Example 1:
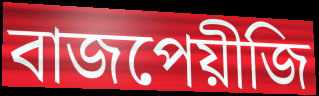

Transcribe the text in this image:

বাজপেয়ীজি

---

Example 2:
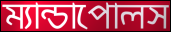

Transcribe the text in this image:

ম্যান্ডাপোলস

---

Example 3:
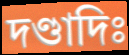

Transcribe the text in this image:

দণ্ডাদিঃ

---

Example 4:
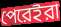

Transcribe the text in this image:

পেরেইরা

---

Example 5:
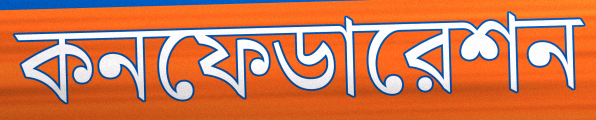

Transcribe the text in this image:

কনফেডারেশন